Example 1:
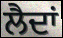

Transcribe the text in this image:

ਲੈਦਾਂ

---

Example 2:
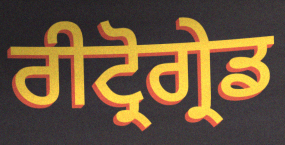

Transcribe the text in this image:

ਰੀਟ੍ਰੋਗ੍ਰੇਡ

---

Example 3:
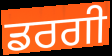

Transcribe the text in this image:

ਡਰਗੀ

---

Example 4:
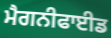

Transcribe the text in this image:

ਮੈਗਨੀਫਾਈਡ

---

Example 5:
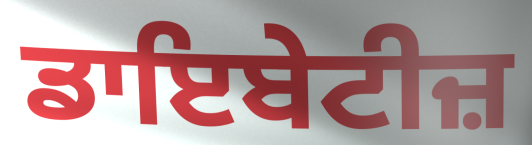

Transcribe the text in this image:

ਡਾਇਬੇਟੀਜ਼